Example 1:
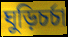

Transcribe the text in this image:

ঘুড়িচর্চা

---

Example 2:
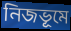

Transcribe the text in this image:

নিজভূমে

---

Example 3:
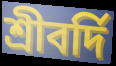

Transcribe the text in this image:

শ্রীবর্দি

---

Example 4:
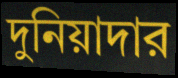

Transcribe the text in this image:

দুনিয়াদার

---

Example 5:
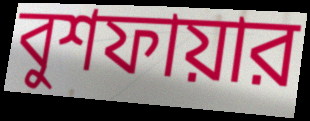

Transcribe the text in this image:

বুশফায়ার